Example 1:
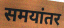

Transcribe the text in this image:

समयांतर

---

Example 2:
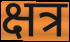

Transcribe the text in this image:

क्षत्र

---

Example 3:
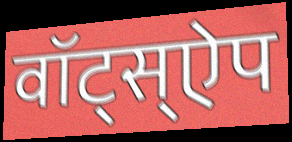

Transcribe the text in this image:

वॉट्स्ऐप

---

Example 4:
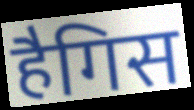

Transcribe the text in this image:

हैगिस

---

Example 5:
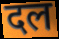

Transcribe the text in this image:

दल